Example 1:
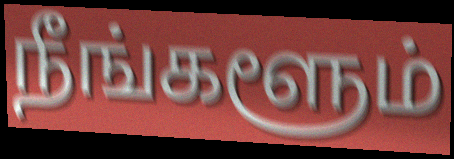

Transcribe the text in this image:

நீங்களூம்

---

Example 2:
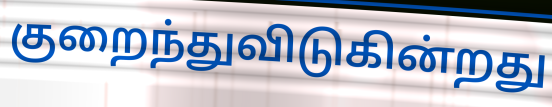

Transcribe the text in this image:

குறைந்துவிடுகின்றது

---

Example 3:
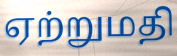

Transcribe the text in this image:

ஏற்றுமதி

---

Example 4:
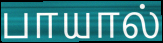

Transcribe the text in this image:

பாயால்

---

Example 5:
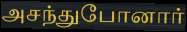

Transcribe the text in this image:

அசந்துபோனார்